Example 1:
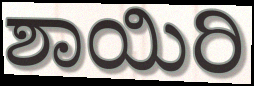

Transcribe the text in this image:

ಶಾಯಿರಿ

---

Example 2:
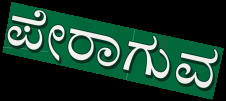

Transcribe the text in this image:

ಪೇರಾಗುವ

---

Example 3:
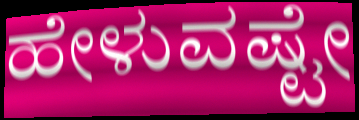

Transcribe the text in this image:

ಹೇಳುವಷ್ಟೇ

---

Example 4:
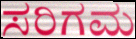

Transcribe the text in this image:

ಸರಿಗಮ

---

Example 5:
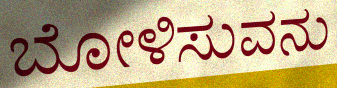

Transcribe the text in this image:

ಬೋಳಿಸುವನು